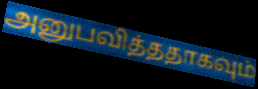
அனுபவித்ததாகவும்